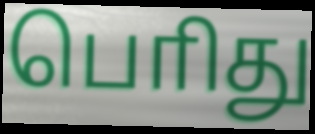
பெரிது